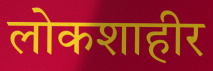
लोकशाहीर